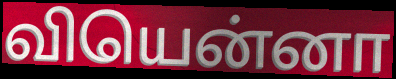
வியென்னா